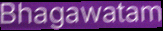
Bhagawatam